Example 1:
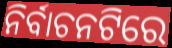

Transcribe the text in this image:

ନିର୍ବାଚନଟିରେ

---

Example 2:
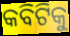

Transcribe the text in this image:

କବିଟିକୁ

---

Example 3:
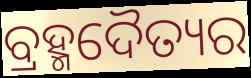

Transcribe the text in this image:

ବ୍ରହ୍ମଦୈତ୍ୟର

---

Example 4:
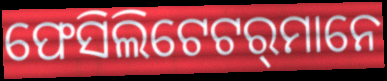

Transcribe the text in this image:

ଫେସିଲିଟେଟର୍‌ମାନେ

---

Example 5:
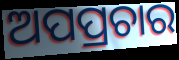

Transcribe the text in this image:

ଅପପ୍ରଚାର